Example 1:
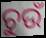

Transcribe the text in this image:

ଚୁଉଁ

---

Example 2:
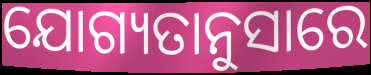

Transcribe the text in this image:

ଯୋଗ୍ୟତାନୁସାରେ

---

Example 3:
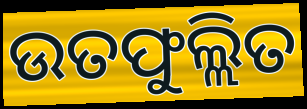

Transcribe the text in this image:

ଉତଫୁଲ୍ଲିତ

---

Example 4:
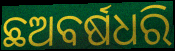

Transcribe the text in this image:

ଛଅବର୍ଷଧରି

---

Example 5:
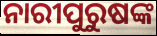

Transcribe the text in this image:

ନାରୀପୁରୁଷଙ୍କ